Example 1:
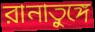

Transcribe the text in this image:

রানাতুঙ্গে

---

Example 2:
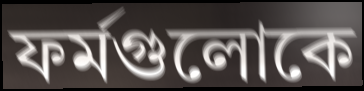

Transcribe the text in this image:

ফর্মগুলোকে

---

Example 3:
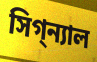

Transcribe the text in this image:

সিগ্‌ন্যাল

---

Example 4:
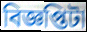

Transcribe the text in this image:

বিজ্ঞপ্তিটা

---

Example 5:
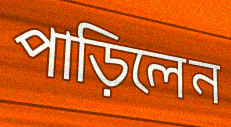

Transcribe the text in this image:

পাড়িলেন